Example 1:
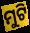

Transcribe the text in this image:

ମୁଟି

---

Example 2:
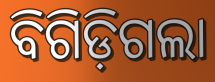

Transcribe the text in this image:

ବିଗିଡ଼ିଗଲା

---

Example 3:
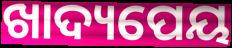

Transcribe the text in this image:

ଖାଦ୍ୟପେୟ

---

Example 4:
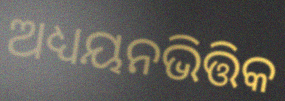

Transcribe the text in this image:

ଅଧ୍ୟୟନଭିତ୍ତିକ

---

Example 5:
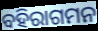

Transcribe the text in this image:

ବହିରାଗମନ